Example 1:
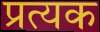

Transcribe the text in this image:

प्रत्यक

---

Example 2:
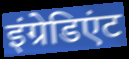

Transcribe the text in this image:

इंग्रेडिएंट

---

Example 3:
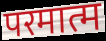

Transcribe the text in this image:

परमात्म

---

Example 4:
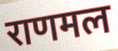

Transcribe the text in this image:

राणमल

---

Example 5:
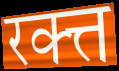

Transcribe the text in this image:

रक्त्त